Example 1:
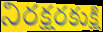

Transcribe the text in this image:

నిరక్షరకుక్షి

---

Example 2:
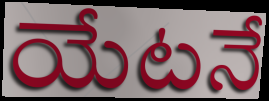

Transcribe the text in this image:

యేటనే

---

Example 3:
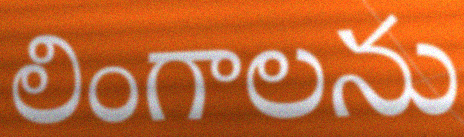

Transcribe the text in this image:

లింగాలను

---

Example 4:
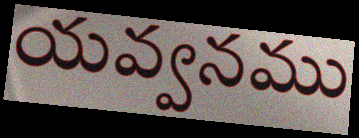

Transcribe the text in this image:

యవ్వనము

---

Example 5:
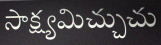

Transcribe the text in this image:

సాక్ష్యమిచ్చుచు